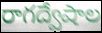
రాగద్వేషాల